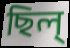
ছিল্